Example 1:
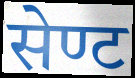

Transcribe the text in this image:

सेण्ट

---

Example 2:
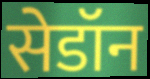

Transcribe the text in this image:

सेडॉन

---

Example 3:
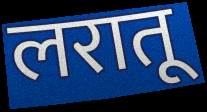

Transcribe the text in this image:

लरातू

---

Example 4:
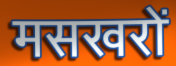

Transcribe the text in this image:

मसखरों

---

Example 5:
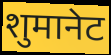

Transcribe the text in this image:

शुमानेट